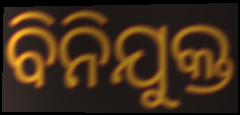
ବିନିଯୁକ୍ତ